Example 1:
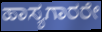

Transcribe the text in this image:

ಹಾಸ್ಯಗಾರರೇ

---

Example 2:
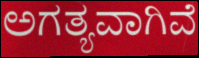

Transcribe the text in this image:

ಅಗತ್ಯವಾಗಿವೆ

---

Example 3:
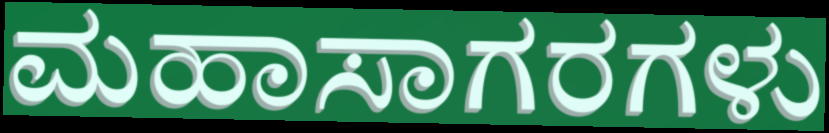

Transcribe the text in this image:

ಮಹಾಸಾಗರಗಳು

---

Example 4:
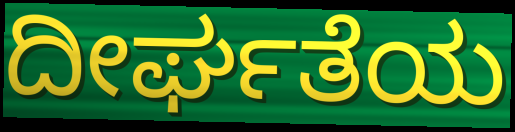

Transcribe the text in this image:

ದೀರ್ಘತೆಯ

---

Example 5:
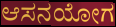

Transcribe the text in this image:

ಆಸನಯೋಗ